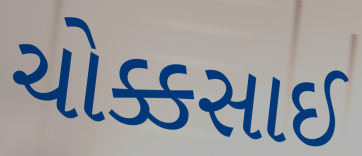
ચોક્કસાઈ